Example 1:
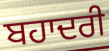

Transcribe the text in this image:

ਬਹਾਦਰੀ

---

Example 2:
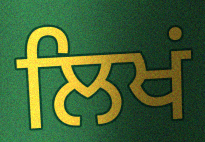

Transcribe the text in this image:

ਲਿਖਂ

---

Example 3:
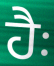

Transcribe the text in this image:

ਹੈਃ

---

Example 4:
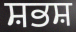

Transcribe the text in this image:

ਸ਼ਭਸ਼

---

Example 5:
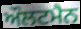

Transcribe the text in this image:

ਔਲਟਮੈਨ